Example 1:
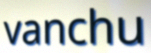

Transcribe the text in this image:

vanchu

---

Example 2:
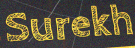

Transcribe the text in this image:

Surekh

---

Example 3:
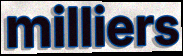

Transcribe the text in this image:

milliers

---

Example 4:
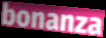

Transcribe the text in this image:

bonanza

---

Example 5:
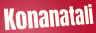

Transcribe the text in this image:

Konanatali